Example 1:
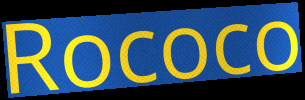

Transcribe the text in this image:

Rococo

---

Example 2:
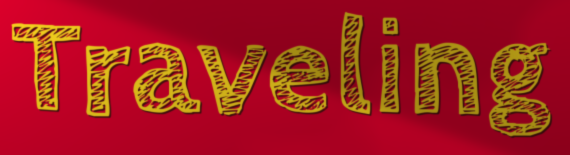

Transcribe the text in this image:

Traveling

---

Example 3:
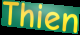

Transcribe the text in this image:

Thien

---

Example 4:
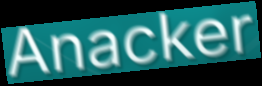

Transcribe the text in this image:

Anacker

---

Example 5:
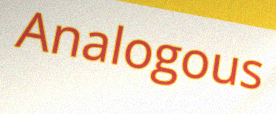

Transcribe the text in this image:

Analogous